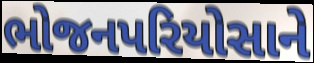
ભોજનપરિયોસાને